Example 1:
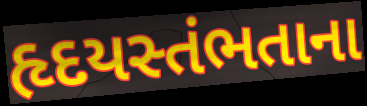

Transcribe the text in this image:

હૃદયસ્તંભતાના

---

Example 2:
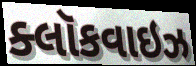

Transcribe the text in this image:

ક્લૉકવાઇઝ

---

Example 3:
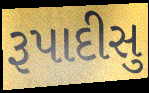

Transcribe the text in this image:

રૂપાદીસુ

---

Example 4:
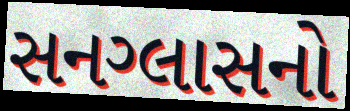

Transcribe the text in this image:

સનગ્લાસનો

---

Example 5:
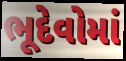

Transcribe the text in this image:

ભૂદેવોમાં